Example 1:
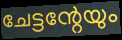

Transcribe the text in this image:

ചേട്ടന്റേയും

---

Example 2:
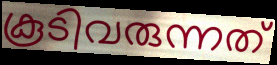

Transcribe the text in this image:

കൂടിവരുന്നത്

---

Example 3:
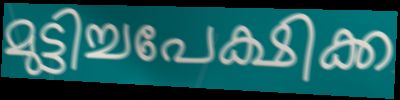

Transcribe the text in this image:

മുട്ടിച്ചപേക്ഷിക്ക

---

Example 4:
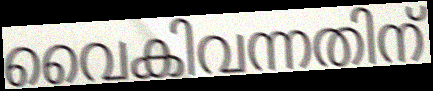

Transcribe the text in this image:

വൈകിവന്നതിന്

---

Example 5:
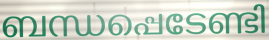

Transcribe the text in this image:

ബന്ധപ്പെടേണ്ടി